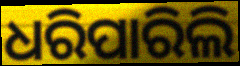
ଧରିପାରିଲି